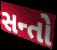
સન્તો